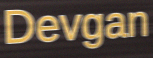
Devgan